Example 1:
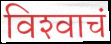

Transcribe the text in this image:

विश्वाचं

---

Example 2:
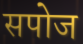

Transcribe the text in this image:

सपोज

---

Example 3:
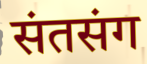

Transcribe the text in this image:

संतसंग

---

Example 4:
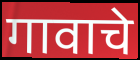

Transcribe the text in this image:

गावाचे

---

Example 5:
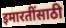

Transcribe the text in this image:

इमारतींसाठी